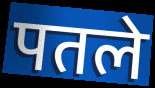
पतले